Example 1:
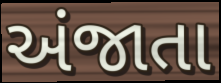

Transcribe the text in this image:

અંજાતા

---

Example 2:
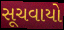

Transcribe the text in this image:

સૂચવાયો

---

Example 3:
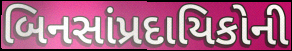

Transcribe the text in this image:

બિનસાંપ્રદાયિકોની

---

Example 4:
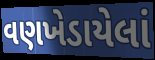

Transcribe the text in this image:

વણખેડાયેલાં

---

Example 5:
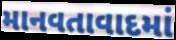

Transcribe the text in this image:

માનવતાવાદમાં